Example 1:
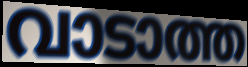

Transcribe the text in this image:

വാടാത്ത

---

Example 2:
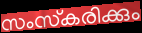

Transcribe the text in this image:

സംസ്‌കരിക്കും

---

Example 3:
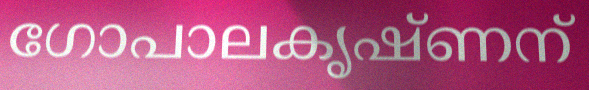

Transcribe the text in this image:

ഗോപാലകൃഷ്ണന്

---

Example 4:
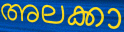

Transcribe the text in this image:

അലക്കാ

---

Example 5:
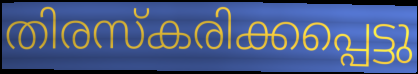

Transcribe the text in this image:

തിരസ്കരിക്കപ്പെട്ടു